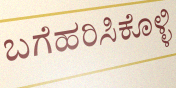
ಬಗೆಹರಿಸಿಕೊಳ್ಳಿ